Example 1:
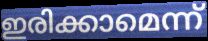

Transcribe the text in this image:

ഇരിക്കാമെന്ന്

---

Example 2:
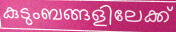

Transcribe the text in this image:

കുടുംബങ്ങളിലേക്ക്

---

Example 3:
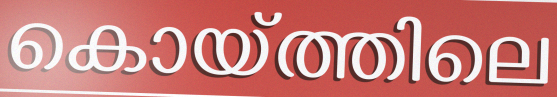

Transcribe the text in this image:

കൊയ്ത്തിലെ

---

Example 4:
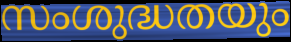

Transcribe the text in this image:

സംശുദ്ധതയും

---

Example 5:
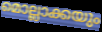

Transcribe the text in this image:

മൊല്ലാക്കയും